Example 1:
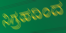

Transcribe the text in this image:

ನಿಗ್ರಹದಿಂದ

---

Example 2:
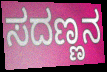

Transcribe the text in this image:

ಸದಣ್ಣನ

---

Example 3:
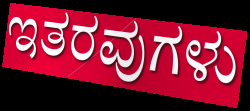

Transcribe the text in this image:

ಇತರವುಗಳು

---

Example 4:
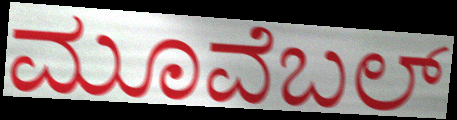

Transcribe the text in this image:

ಮೂವೆಬಲ್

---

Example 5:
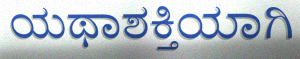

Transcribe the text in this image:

ಯಥಾಶಕ್ತಿಯಾಗಿ